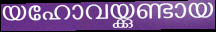
യഹോവയ്ക്കുണ്ടായ